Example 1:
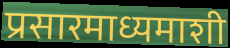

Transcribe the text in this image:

प्रसारमाध्यमाशी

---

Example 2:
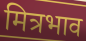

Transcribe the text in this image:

मित्रभाव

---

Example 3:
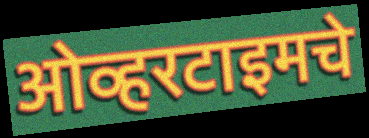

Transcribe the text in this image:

ओव्हरटाइमचे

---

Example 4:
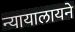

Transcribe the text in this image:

न्यायालायने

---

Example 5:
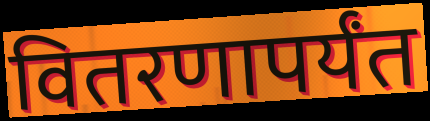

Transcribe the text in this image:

वितरणापर्यंत